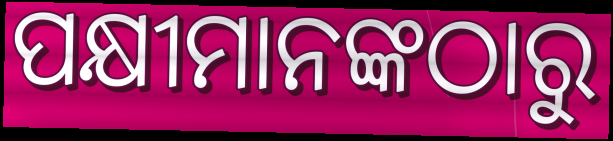
ପକ୍ଷୀମାନଙ୍କଠାରୁ